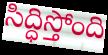
సిద్ధిస్తోంది